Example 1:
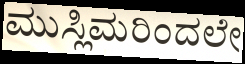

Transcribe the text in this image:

ಮುಸ್ಲಿಮರಿಂದಲೇ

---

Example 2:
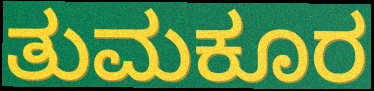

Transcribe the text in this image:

ತುಮಕೂರ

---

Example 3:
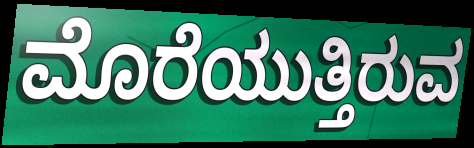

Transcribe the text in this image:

ಮೊರೆಯುತ್ತಿರುವ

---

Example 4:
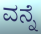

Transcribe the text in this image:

ವನ್ನೆ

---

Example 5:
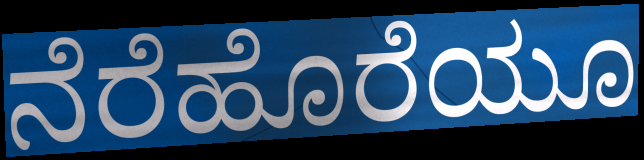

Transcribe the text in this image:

ನೆರೆಹೊರೆಯೂ